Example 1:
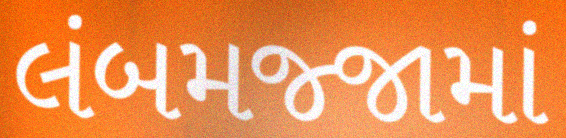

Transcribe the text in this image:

લંબમજ્જામાં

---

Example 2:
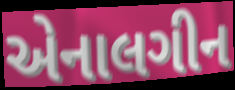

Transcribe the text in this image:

એનાલગીન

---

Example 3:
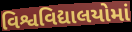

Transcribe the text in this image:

વિશ્વવિદ્યાલયોમાં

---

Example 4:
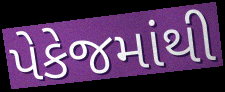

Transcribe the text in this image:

પેકેજમાંથી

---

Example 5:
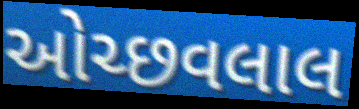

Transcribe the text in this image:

ઓચ્છવલાલ